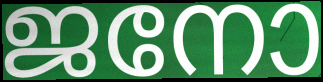
ജനോ